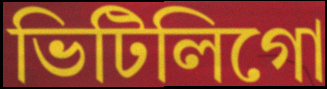
ভিটিলিগো